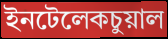
ইনটেলেকচুয়াল